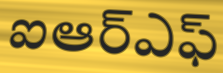
ఐఆర్ఎఫ్